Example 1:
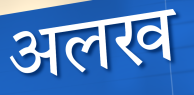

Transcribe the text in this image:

अलख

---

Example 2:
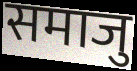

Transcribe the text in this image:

समाजु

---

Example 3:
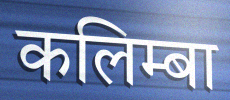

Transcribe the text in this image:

कलिम्बा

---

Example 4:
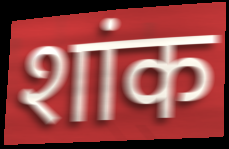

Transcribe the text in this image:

शांक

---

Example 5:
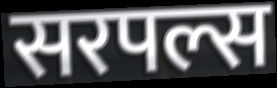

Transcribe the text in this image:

सरपल्स